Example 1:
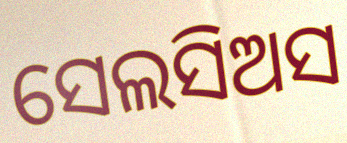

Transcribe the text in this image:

ସେଲସିଅସ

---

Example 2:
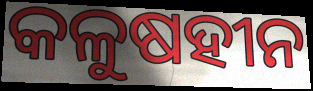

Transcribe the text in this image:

କଳୁଷହୀନ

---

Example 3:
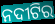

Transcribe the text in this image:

ନଦୀଟିର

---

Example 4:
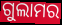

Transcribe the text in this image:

ଗୁଲାମର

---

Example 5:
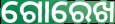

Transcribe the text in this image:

ଗୋରେଖ